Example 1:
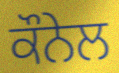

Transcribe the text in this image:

ਕੌਨੇਲ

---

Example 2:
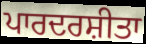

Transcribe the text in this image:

ਪਾਰਦਰਸ਼ੀਤਾ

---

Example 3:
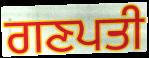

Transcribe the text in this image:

ਗਣਪਤੀ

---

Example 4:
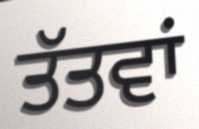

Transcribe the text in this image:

ਤੱਤਵਾਂ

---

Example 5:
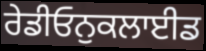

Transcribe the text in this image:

ਰੇਡੀਓਨੁਕਲਾਈਡ